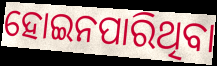
ହୋଇନପାରିଥିବା